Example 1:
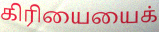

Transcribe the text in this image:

கிரியையைக்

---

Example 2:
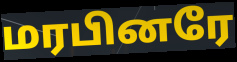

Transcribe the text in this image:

மரபினரே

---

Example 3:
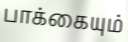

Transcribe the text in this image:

பாக்கையும்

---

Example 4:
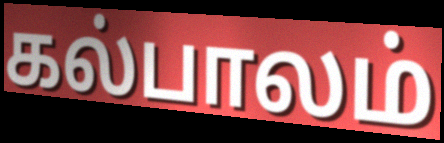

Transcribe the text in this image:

கல்பாலம்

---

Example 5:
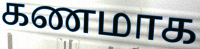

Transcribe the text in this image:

கணமாக